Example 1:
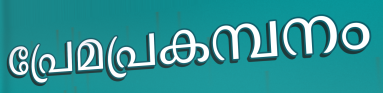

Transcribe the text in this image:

പ്രേമപ്രകമ്പനം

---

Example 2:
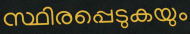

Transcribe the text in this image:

സ്ഥിരപ്പെടുകയും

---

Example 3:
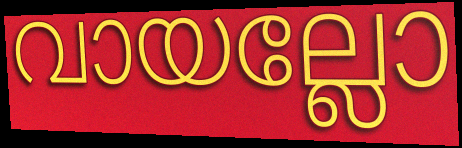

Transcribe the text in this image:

വായല്ലോ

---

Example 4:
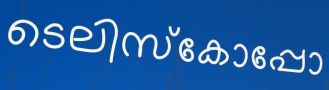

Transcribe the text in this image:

ടെലിസ്കോപ്പോ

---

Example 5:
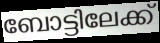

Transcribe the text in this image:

ബോട്ടിലേക്ക്